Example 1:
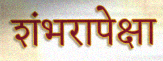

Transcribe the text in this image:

शंभरापेक्षा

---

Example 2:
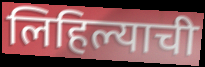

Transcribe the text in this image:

लिहिल्याची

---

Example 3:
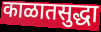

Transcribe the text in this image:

काळातसुद्धा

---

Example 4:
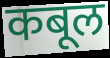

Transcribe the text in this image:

कबूल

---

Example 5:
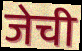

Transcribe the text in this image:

जेची